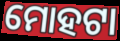
ମୋହଟା